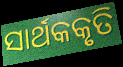
ସାର୍ଥକକୃତି